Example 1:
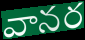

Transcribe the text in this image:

వానర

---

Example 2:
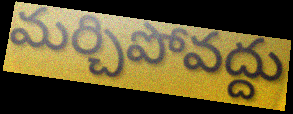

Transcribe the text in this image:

మర్చిపోవద్దు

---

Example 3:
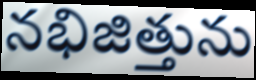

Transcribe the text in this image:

నభిజిత్తును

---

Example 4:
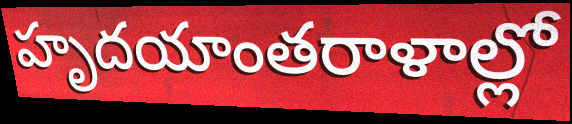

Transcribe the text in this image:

హృదయాంతరాళాల్లో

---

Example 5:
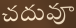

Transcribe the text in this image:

చదువూ